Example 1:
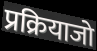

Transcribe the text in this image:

प्रक्रियाजो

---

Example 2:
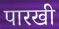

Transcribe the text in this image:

पारखी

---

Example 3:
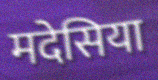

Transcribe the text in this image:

मदेसिया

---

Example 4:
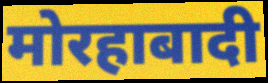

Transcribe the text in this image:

मोरहाबादी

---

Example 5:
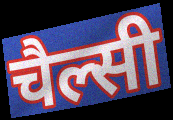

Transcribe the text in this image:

चैल्सी